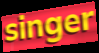
singer